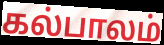
கல்பாலம்